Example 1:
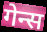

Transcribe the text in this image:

गेन्स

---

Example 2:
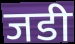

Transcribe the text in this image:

जडी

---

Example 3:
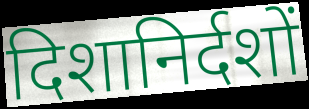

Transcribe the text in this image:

दिशानिर्दशों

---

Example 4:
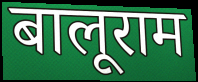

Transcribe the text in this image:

बालूराम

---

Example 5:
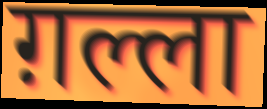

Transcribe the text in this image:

ग़ल्ला